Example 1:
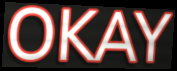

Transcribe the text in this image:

OKAY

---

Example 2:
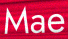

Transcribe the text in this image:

Mae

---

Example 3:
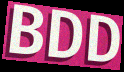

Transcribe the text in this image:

BDD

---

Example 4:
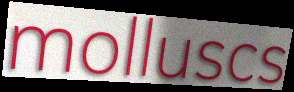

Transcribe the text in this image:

molluscs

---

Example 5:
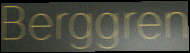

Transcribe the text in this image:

Berggren